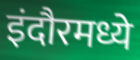
इंदौरमध्ये